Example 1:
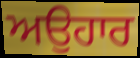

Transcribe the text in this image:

ਅਉਹਾਰ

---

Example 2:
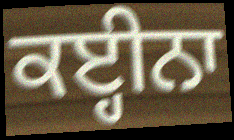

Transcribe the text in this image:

ਕੲ੍ਹੀਨਾ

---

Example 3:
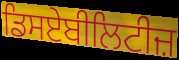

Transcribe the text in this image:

ਡਿਸਏਬੀਲਿਟੀਜ਼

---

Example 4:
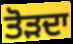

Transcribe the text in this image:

ਤੋੜਦਾ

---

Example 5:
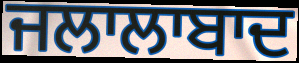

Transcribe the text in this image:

ਜਲਾਲਾਬਾਦ